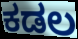
ಕಡಲ